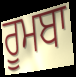
ਰੂਮਬਾ